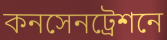
কনসেনট্রেশনে